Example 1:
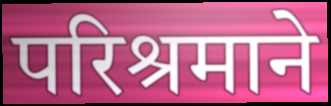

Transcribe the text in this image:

परिश्रमाने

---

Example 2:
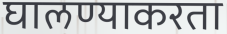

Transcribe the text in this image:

घालण्याकरता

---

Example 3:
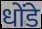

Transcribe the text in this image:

धोंडे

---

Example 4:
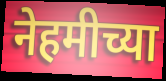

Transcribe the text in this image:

नेहमीच्या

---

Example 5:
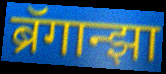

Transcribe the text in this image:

ब्रॅगान्झा